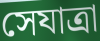
সেযাত্রা